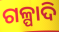
ଗଳ୍ପାଦି